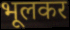
भूलकर